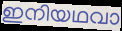
ഇനിയഥവാ